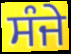
ਸੰਜੇ